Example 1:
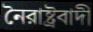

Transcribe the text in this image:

নৈরাষ্ট্রবাদী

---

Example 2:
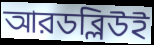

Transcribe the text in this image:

আরডব্লিউই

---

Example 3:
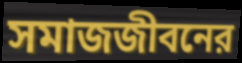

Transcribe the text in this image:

সমাজজীবনের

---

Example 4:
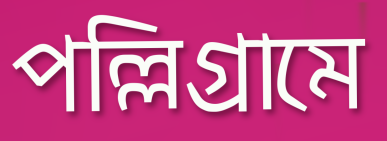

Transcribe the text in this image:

পল্লিগ্রামে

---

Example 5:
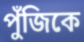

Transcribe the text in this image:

পুঁজিকে